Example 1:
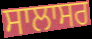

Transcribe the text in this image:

ਸਾਲਾਸਰ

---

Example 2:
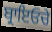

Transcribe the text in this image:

ਬ੍ਰਾਇਓਚੇ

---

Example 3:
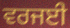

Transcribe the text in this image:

ਵਰਜਈ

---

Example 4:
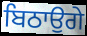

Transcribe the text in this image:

ਬਿਠਾਉਗੇ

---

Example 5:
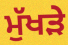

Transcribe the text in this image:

ਮੁੱਖੜੇ